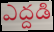
ఎద్దడి